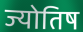
ज्योतिष